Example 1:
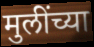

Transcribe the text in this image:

मुलींच्या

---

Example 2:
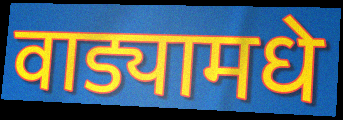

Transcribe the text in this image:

वाड्यामधे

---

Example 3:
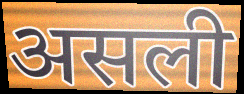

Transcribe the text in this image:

असली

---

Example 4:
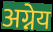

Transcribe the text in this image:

अग्नेय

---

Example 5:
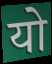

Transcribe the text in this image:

यो